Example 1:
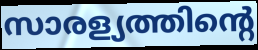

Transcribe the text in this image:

സാരള്യത്തിന്റെ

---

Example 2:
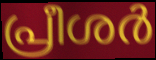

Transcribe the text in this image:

പ്രീശർ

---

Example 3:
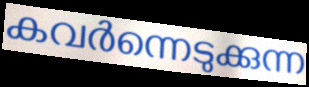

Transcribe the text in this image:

കവർന്നെടുക്കുന്ന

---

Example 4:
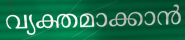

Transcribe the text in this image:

വ്യക്തമാക്കാൻ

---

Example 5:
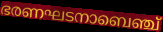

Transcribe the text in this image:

ഭരണഘടനാബെഞ്ച്